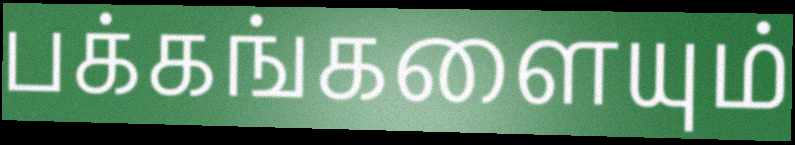
பக்கங்களையும்